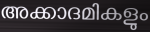
അക്കാദമികളും